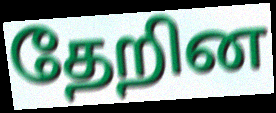
தேறின